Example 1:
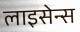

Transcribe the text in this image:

लाइसेन्स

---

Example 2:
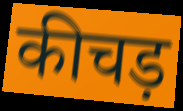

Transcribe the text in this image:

कीचड़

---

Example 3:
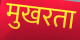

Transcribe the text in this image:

मुखरता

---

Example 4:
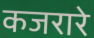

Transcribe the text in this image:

कजरारे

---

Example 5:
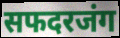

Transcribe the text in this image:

सफदरजंग